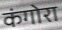
कंगोरा